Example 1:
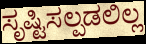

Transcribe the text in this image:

ಸೃಷ್ಟಿಸಲ್ಪಡಲಿಲ್ಲ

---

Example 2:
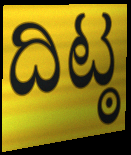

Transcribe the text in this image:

ದಿಟ್ಠ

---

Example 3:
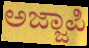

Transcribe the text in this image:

ಅಜ್ಜಾಪಿ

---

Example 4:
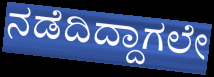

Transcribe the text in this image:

ನಡೆದಿದ್ದಾಗಲೇ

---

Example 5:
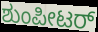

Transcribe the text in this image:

ಶುಂಪೀಟರ್